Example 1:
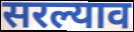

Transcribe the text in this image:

सरल्याव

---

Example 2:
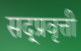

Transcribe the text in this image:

सद्प्रवृत्ती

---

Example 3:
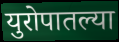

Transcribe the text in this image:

युरोपातल्या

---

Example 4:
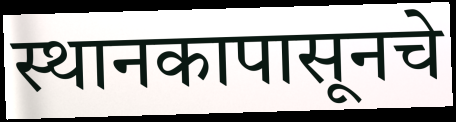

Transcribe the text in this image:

स्थानकापासूनचे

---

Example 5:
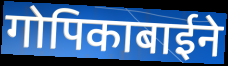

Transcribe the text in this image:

गोपिकाबाईने